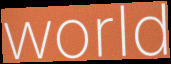
world